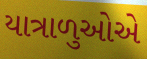
યાત્રાળુઓએ